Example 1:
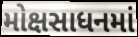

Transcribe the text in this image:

મોક્ષસાધનમાં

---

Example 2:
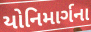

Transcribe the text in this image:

યોનિમાર્ગના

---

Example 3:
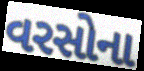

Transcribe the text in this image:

વરસોના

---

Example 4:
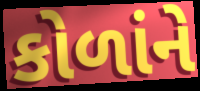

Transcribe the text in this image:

કોળાંને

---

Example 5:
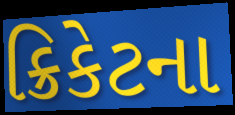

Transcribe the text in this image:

ક્રિકેટના